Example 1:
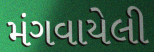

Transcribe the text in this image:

મંગવાયેલી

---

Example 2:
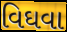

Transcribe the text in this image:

વિઘવા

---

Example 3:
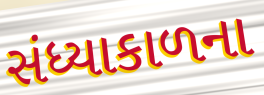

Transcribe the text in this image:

સંધ્યાકાળના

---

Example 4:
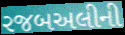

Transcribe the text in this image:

રજબઅલીની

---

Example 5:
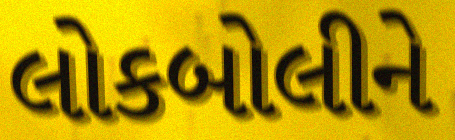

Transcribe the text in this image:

લોકબોલીને